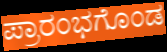
ಪ್ರಾರಂಭಗೊಂಡ